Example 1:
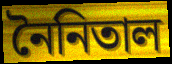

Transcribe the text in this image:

নৈনিতাল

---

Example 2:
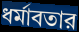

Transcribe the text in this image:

ধর্মাবতার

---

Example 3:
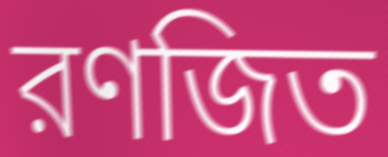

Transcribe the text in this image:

রণজিত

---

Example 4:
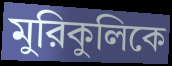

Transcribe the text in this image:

মুরিকুলিকে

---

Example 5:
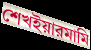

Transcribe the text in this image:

শেখইয়ারমামি